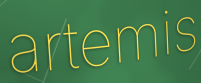
artemis